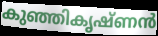
കുഞ്ഞികൃഷ്ണൻ